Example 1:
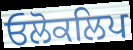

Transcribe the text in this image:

ਓਲੋਕਲਿਪ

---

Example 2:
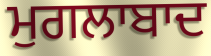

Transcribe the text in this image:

ਮੁਗਲਾਬਾਦ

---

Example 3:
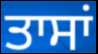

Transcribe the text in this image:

ਤਾਸਾਂ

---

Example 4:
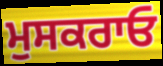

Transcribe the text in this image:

ਮੁਸਕਰਾਓ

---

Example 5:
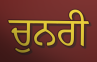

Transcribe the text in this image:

ਚੁਨਰੀ